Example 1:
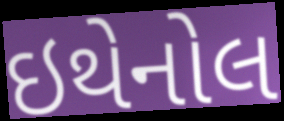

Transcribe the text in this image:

ઇથેનોલ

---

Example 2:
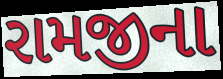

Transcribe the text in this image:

રામજીના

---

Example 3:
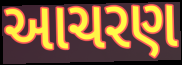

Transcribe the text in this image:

આચરણ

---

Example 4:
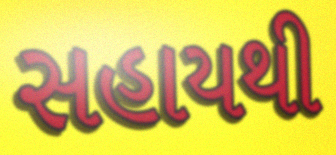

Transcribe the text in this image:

સહાયથી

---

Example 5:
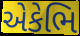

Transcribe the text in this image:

એકેભિ